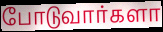
போடுவார்களா